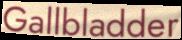
Gallbladder